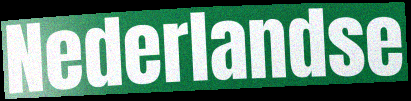
Nederlandse